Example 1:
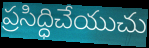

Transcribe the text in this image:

ప్రసిద్ధిచేయుచు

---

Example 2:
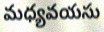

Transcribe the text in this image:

మధ్యవయసు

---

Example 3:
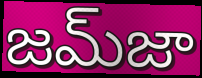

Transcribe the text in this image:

జమ్‌జా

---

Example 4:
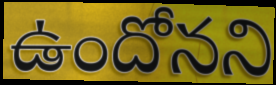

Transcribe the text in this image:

ఉందోనని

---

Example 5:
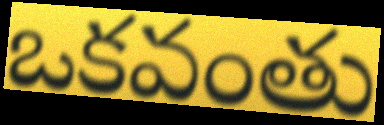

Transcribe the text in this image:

ఒకవంతు